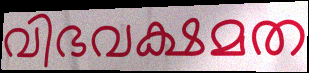
വിഭവക്ഷമത